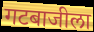
गटबाजीला